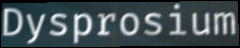
Dysprosium